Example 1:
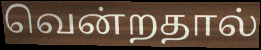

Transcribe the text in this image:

வென்றதால்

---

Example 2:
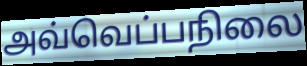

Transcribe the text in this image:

அவ்வெப்பநிலை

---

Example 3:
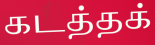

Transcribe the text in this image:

கடத்தக்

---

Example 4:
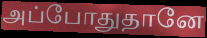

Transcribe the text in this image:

அப்போதுதானே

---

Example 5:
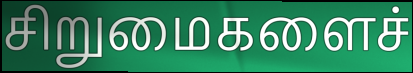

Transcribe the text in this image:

சிறுமைகளைச்